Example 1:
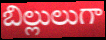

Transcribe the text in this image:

బిల్లులుగా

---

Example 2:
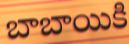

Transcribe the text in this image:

బాబాయికి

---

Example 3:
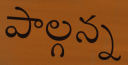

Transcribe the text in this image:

పాల్గన్న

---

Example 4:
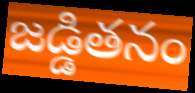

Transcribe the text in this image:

జడ్డితనం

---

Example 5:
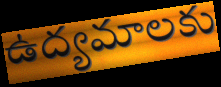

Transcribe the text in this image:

ఉద్యమాలకు